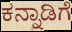
ಕನ್ನಾಡಿಗೆ